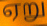
ஏறு